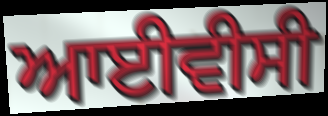
ਆਈਵੀਸੀ